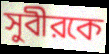
সুবীরকে